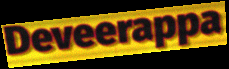
Deveerappa